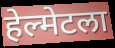
हेल्मेटला